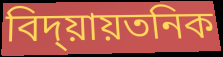
বিদ্য়ায়তনিক